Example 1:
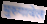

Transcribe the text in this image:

मुरुगावेल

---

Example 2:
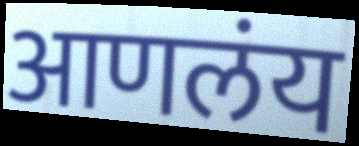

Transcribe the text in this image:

आणलंय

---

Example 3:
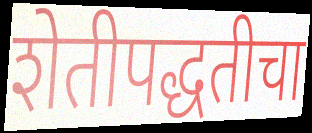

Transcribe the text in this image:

शेतीपद्धतीचा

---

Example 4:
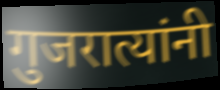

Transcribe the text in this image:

गुजरात्यांनी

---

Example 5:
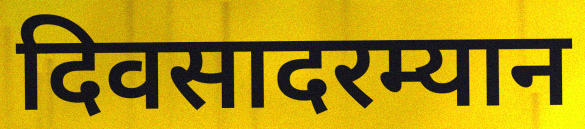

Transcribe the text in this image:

दिवसादरम्यान